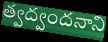
త్వద్వందనాని